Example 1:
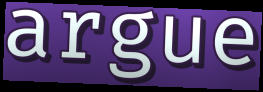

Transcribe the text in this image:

argue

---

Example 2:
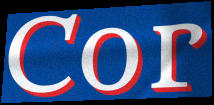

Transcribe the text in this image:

Cor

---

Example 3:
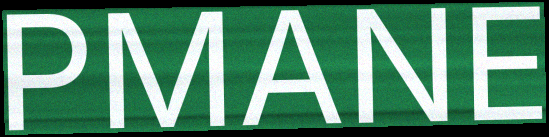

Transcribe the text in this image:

PMANE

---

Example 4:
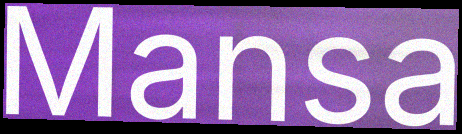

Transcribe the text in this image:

Mansa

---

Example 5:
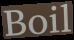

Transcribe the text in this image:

Boil